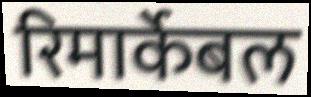
रिमार्केबल